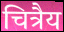
चित्रैय